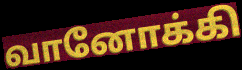
வானோக்கி